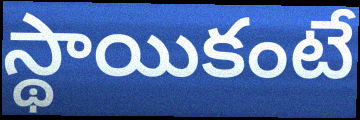
స్థాయికంటే